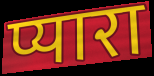
प्यारा